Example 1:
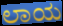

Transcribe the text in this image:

ಲಾಯ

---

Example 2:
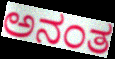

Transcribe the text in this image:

ಅನಂತ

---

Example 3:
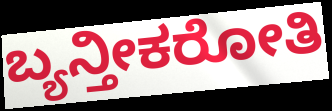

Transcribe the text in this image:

ಬ್ಯನ್ತೀಕರೋತಿ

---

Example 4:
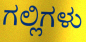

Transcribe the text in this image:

ಗಲ್ಲಿಗಳು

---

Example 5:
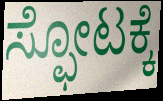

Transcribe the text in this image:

ಸ್ಫೋಟಕ್ಕೆ